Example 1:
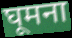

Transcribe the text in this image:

घूमना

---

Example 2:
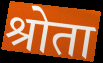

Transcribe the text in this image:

श्रोता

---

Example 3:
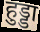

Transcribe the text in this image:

हुड्डा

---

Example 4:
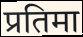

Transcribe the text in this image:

प्रतिमा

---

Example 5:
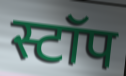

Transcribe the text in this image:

स्टॉप